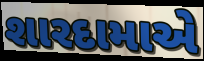
શારદામાએ